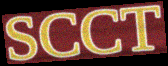
SCCT